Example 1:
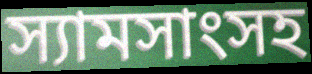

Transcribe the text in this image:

স্যামসাংসহ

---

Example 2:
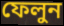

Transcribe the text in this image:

ফেলুন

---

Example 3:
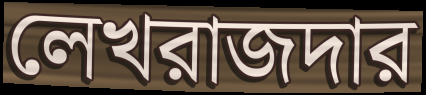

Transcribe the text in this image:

লেখরাজদার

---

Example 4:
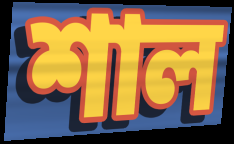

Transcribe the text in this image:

শাল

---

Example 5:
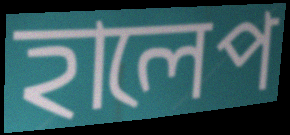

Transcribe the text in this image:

হালেপ